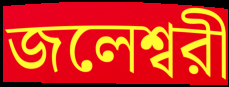
জলেশ্বরী